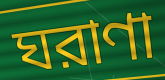
ঘরাণা